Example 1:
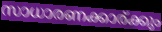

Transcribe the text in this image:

സാധാരണക്കാര്ക്കും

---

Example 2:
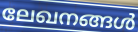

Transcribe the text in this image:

ലേഖനങ്ങൾ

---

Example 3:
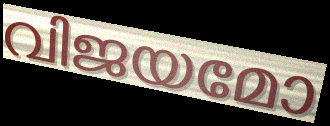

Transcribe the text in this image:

വിജയമോ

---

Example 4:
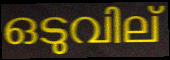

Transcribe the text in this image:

ഒടുവില്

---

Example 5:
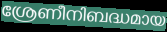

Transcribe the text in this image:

ശ്രേണീനിബദ്ധമായ